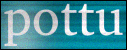
pottu